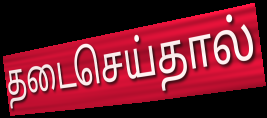
தடைசெய்தால்